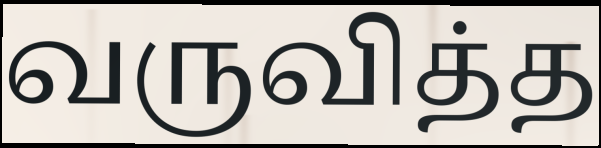
வருவித்த